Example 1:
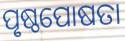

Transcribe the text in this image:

ପୃଷ୍ଠପୋଷତା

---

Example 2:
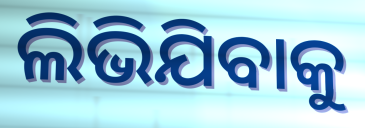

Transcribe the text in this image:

ଲିଭିଯିବାକୁ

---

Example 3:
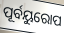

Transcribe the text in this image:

ପୂର୍ବୟୁରୋପ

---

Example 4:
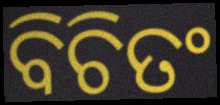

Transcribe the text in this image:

ବିଚିତଂ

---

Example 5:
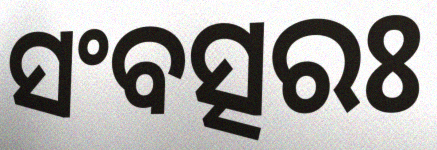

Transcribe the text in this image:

ସଂବତ୍ସରଃ